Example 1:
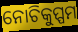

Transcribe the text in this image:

ନୋଚିକୁପ୍ପମ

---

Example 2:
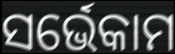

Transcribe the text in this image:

ସର୍ଭେକାମ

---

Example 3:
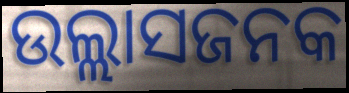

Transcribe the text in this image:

ଉଲ୍ଲାସଜନକ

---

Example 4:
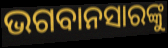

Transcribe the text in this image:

ଭଗବାନସାରଙ୍କୁ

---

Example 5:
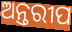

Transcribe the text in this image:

ଅନ୍ତରୀପ